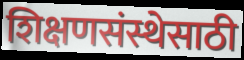
शिक्षणसंस्थेसाठी